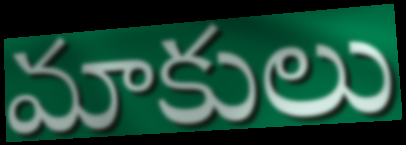
మాకులు